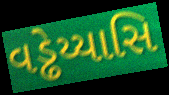
વડ્ઢેય્યાસિ